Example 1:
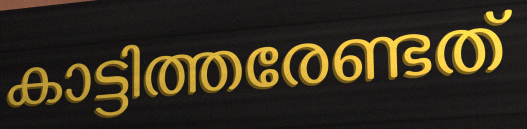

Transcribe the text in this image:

കാട്ടിത്തരേണ്ടത്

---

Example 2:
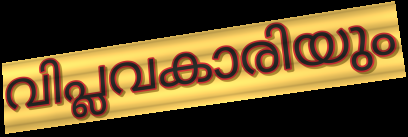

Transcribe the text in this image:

വിപ്ലവകാരിയും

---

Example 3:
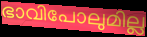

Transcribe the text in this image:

ഭാവിപോലുമില്ല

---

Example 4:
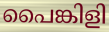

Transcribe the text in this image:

പൈങ്കിളി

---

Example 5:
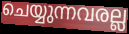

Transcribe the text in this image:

ചെയ്യുന്നവരല്ല